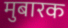
मुबारक